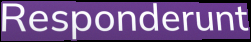
Responderunt